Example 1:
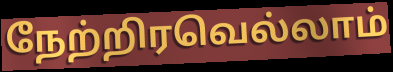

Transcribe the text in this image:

நேற்றிரவெல்லாம்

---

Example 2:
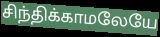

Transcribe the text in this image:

சிந்திக்காமலேயே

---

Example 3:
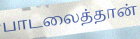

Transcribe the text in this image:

பாடலைத்தான்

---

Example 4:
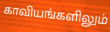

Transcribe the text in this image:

காவியங்களிலும்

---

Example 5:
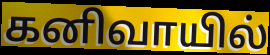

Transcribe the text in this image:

கனிவாயில்